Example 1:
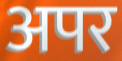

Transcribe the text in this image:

अपर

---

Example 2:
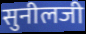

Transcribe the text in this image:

सुनीलजी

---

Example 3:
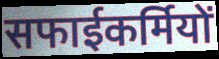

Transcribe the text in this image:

सफाईकर्मियों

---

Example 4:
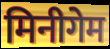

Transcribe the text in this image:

मिनीगेम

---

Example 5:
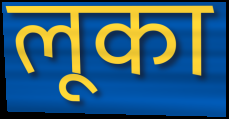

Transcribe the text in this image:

लूका